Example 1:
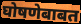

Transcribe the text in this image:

घोषणेबाबत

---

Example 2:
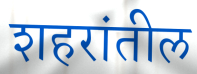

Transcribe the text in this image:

शहरांतील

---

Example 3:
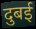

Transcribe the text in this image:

दुबई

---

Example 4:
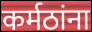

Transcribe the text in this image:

कर्मठांना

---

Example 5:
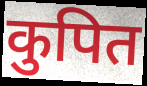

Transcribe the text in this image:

कुपित